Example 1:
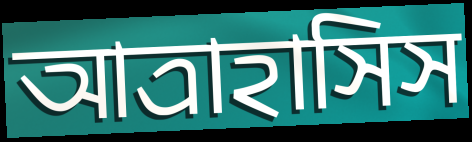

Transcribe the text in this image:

আত্রাহাসিস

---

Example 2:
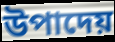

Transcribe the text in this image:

উপাদেয়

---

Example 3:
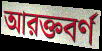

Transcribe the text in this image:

আরক্তবর্ণ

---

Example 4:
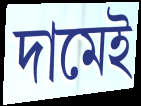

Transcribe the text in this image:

দামেই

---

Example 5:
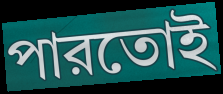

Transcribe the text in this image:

পারতোই